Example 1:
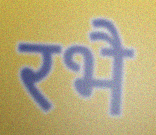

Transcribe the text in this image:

रभै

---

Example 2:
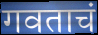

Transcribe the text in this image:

गवताचं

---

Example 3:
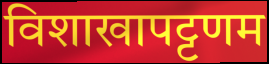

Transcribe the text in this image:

विशाखापट्टणम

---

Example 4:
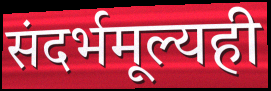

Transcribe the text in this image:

संदर्भमूल्यही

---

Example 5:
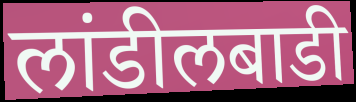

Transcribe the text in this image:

लांडीलबाडी